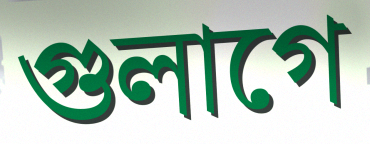
গুলাগে